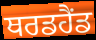
ਥਰਡਹੈਂਡ